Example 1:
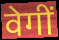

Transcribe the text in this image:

वेगीं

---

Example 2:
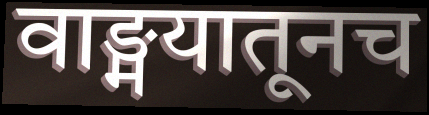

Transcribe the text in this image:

वाङ्मयातूनच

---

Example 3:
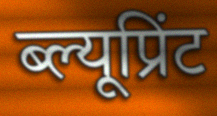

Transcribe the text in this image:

ब्ल्यूप्रिंट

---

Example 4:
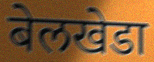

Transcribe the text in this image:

बेलखेडा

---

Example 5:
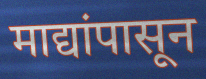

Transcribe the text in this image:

माद्यांपासून